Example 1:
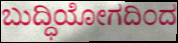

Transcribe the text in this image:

ಬುದ್ಧಿಯೋಗದಿಂದ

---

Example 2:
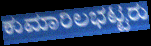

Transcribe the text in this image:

ಕುಮಾರಿಲಭಟ್ಟರು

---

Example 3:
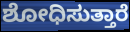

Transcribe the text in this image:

ಶೋಧಿಸುತ್ತಾರೆ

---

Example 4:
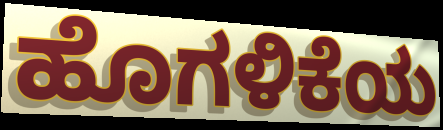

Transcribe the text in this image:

ಹೊಗಳಿಕೆಯ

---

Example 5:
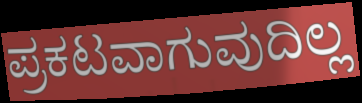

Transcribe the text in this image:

ಪ್ರಕಟವಾಗುವುದಿಲ್ಲ